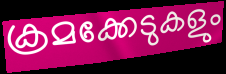
ക്രമക്കേടുകളും